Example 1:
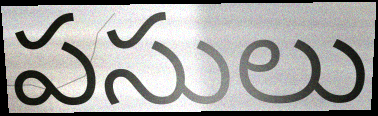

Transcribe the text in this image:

పసులు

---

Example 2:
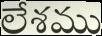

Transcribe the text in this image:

లేశము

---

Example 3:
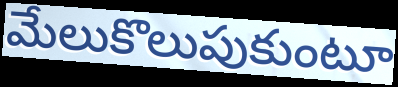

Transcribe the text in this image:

మేలుకొలుపుకుంటూ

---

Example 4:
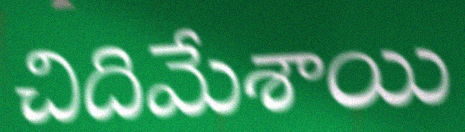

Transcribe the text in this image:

చిదిమేశాయి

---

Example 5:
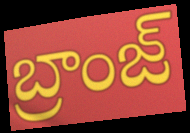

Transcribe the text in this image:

బ్రాంజ్